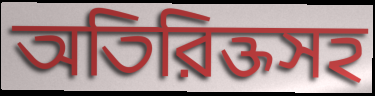
অতিরিক্তসহ